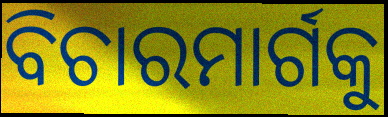
ବିଚାରମାର୍ଗକୁ